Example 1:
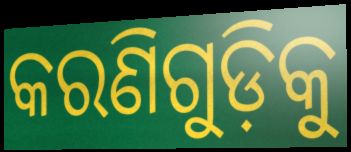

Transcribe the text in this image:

କରଣିଗୁଡ଼ିକୁ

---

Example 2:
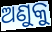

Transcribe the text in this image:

ଅଣୁକୁ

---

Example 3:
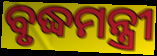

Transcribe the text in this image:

ବୃଦ୍ଧମନ୍ତ୍ରୀ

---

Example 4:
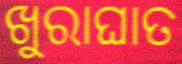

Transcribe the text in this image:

ଖୁରାଘାତ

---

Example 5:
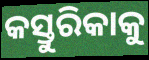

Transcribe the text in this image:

କସ୍ତୁରିକାକୁ